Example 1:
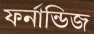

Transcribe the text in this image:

ফর্নান্ডিজ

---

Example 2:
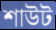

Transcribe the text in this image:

শাউট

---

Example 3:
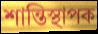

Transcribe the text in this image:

শান্তিস্থাপক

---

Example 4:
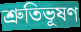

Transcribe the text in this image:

শ্রুতিভূষণ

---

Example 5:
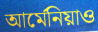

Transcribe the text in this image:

আর্মেনিয়াও